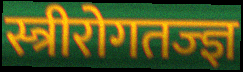
स्‍त्रीरोगतज्‍ज्ञ